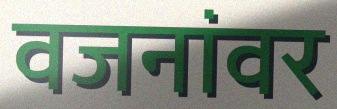
वजनांवर